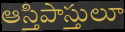
ఆస్తిపాస్తులూ